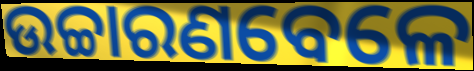
ଉଚ୍ଚାରଣବେଳେ